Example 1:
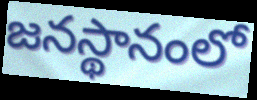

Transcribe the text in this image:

జనస్థానంలో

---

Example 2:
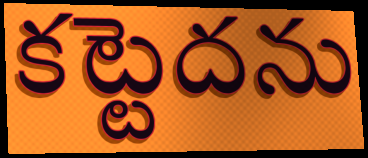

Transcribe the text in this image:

కట్టెదను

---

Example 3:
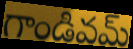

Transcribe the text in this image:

గాండివమ్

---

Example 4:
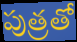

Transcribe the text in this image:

పుత్రతో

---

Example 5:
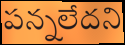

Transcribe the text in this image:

పన్నలేదని